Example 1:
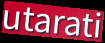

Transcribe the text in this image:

utarati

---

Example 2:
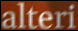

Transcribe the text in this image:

alteri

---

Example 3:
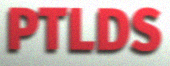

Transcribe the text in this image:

PTLDS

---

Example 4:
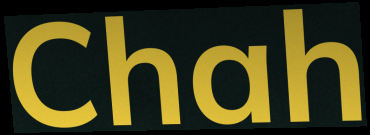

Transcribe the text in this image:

Chah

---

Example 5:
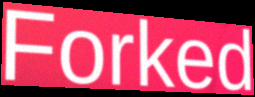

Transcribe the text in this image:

Forked